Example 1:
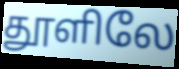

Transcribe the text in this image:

தூளிலே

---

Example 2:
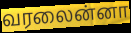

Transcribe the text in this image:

வரலைன்னா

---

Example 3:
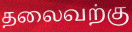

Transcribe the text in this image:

தலைவற்கு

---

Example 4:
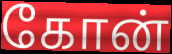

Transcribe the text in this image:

கோன்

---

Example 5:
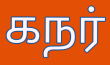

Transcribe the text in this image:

கநர்